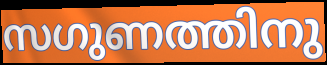
സഗുണത്തിനു